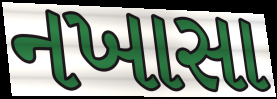
નખાસા